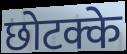
छोटक्के